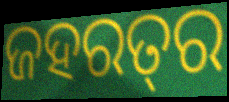
ଜହରତ୍‍ର